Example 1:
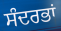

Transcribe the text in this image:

ਸੰਦਰਭਾਂ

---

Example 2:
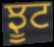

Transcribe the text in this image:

ਝੂਟ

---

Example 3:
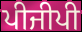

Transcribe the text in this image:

ਪੀਜੀਪੀ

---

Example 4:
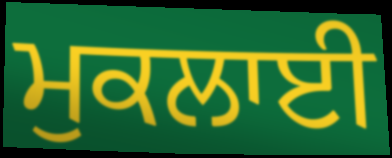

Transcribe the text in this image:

ਮੁਕਲਾਈ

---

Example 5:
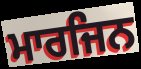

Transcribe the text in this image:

ਮਾਰਜਿਨ